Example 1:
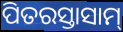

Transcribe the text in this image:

ପିତରସ୍ତାସାମ୍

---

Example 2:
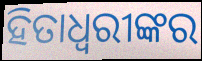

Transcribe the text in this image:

ହିତାଧ୍ଵରୀଙ୍କର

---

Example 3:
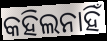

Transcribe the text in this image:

କହିଲନାହିଁ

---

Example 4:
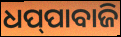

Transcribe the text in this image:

ଧପ୍‌ପାବାଜି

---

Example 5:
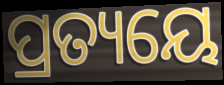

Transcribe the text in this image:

ପ୍ରତ୍ୟୟେ